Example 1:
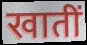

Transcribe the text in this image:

खातीं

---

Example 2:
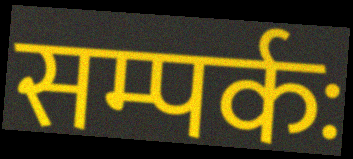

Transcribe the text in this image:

सम्पर्कः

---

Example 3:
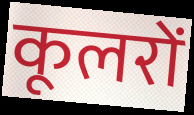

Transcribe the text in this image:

कूलरों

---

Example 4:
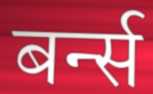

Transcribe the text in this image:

बर्न्स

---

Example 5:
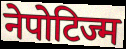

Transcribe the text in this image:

नेपोटिज्म